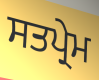
ਸਤਪ੍ਰੇਮ